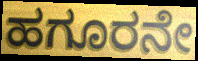
ಹಗೂರನೇ